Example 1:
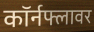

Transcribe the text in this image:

कॉर्नफ्लावर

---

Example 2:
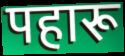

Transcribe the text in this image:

पहारू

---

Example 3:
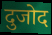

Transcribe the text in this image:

दुजोद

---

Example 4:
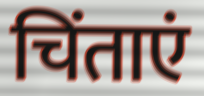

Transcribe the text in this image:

चिंताएं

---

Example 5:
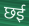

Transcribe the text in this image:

छई